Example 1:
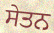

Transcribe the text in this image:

ਸੇਤਨ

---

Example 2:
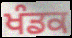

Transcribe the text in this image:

ਖੰਡਕ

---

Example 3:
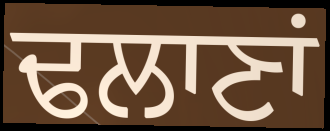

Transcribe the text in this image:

ਢਲਾਣਾਂ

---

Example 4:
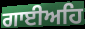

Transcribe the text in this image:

ਗਾਈਅਹਿ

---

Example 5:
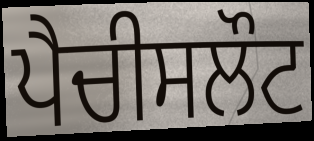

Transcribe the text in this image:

ਪੈਚੀਸਲੌਟ